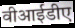
वीआईडीए